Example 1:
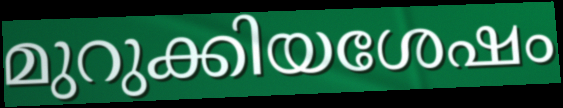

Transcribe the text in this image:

മുറുക്കിയശേഷം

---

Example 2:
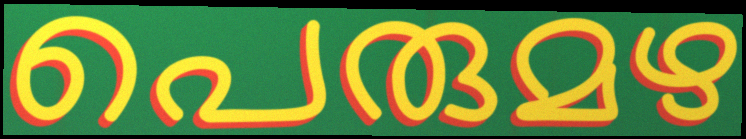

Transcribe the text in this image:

പെരുമഴ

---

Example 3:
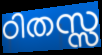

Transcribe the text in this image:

ഠിതസ്സ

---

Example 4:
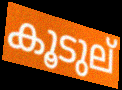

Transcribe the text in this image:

കൂടുല്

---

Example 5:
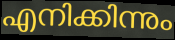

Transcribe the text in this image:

എനിക്കിന്നും